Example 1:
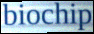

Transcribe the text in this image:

biochip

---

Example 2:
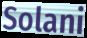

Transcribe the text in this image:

Solani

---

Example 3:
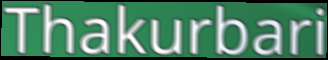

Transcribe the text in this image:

Thakurbari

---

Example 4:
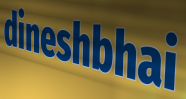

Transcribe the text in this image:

dineshbhai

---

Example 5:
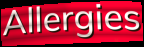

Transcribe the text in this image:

Allergies